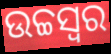
ଉଚ୍ଚସ୍ବର